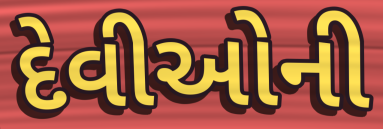
દેવીઓની